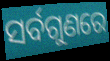
ସର୍ବଗୁଣରେ